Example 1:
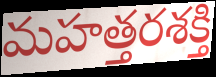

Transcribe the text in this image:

మహత్తరశక్తి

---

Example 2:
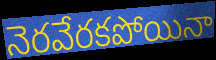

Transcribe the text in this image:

నెరవేరకపోయినా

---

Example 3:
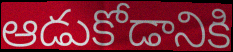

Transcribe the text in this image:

ఆడుకోడానికి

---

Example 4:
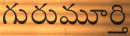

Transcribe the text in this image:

గురుమూర్తి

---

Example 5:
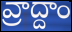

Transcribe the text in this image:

వ్రాద్దాం